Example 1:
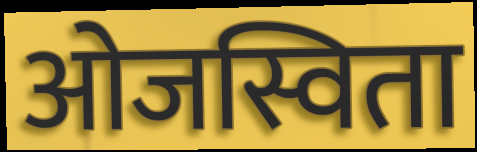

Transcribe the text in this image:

ओजस्विता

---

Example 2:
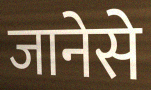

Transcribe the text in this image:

जानेसे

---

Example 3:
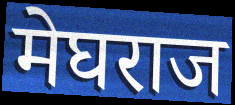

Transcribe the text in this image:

मेघराज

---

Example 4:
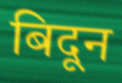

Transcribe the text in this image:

बिदून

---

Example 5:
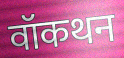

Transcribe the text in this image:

वॉकथन